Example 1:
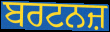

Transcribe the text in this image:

ਬਰਟਨਜ਼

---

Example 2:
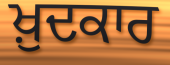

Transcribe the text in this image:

ਖ਼ੁਦਕਾਰ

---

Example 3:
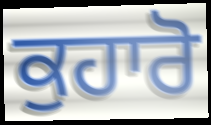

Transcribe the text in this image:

ਕੁਹਾਰੋ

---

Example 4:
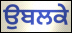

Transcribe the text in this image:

ਉਬਲਕੇ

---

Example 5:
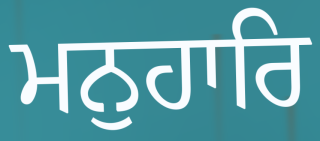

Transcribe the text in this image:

ਮਨੁਹਾਰਿ